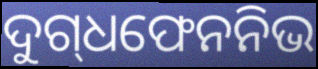
ଦୁଗ୍‍ଧଫେନନିଭ